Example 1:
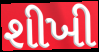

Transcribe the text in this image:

શીખી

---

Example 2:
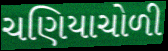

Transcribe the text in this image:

ચણિયાચોળી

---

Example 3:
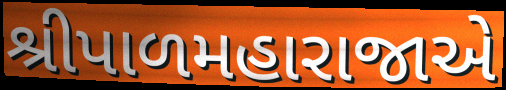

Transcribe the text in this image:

શ્રીપાળમહારાજાએ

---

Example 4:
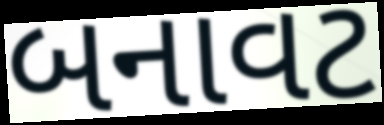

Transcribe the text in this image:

બનાવટ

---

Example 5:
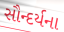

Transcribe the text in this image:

સૌન્દર્યના